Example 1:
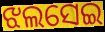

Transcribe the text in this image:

ଝଲସେଇ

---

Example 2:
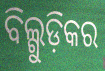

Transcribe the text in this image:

ବିଲ୍ଗୁଡ଼ିକର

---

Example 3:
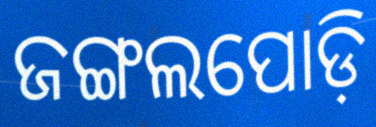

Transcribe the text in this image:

ଜଙ୍ଗଲପୋଡ଼ି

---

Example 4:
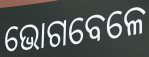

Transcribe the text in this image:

ଭୋଗବେଳେ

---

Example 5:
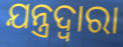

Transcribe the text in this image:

ଯନ୍ତ୍ରଦ୍ଵାରା